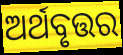
ଅର୍ଥବୃତ୍ତର